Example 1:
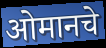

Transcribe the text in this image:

ओमानचे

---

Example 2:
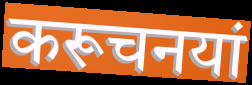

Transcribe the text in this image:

करूचनयां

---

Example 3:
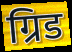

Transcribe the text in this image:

ग्रिड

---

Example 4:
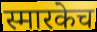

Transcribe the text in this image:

स्मारकेच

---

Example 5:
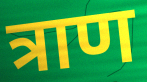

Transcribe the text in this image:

त्राण